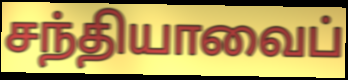
சந்தியாவைப்